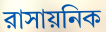
রাসায়নিক